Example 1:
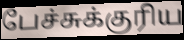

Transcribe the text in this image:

பேச்சுக்குரிய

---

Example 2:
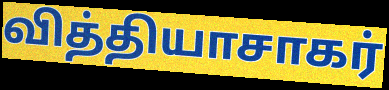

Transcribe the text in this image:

வித்தியாசாகர்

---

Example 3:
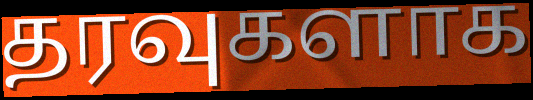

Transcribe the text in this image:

தரவுகளாக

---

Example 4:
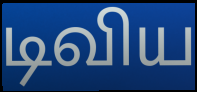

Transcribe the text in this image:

டிவிய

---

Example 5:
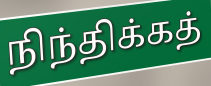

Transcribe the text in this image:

நிந்திக்கத்